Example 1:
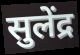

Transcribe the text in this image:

सुलेंद्र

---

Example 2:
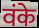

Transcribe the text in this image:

वंके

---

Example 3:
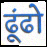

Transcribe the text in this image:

ढूंढो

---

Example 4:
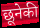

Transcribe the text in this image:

छूनेकी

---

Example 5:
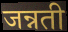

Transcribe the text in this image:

जन्नती